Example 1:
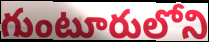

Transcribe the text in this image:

గుంటూరులోని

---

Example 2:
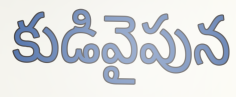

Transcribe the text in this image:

కుడివైపున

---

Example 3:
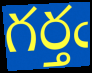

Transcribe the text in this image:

గర్తఁ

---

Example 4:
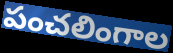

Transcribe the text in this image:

పంచలింగాల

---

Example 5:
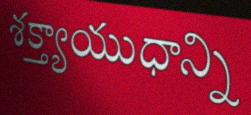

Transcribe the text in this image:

శక్త్యాయుధాన్ని